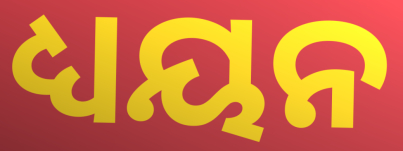
ଧ୍ୟୟନ